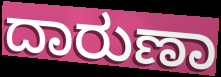
ದಾರುಣಾ